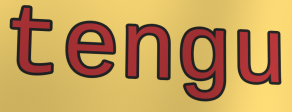
tengu